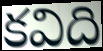
కవిది